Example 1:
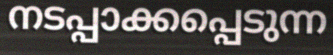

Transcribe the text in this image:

നടപ്പാക്കപ്പെടുന്ന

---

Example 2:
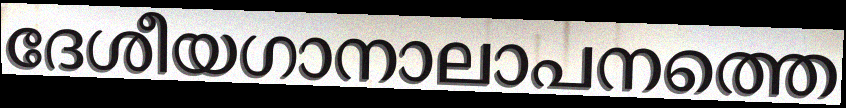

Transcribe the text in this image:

ദേശീയഗാനാലാപനത്തെ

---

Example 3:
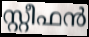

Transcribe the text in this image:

സ്റ്റീഫൻ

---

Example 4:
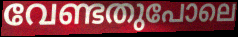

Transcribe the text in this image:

വേണ്ടതുപോലെ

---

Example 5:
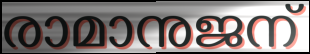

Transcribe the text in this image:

രാമാനുജന്